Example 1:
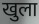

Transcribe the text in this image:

खुला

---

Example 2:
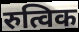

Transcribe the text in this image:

रुत्विक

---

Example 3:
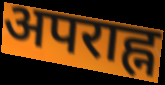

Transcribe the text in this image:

अपराह्न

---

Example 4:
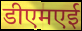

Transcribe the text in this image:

डीएमएई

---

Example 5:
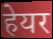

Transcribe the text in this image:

हेयर